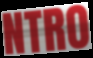
NTRO